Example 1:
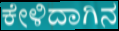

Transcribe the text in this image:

ಕೇಳಿದಾಗಿನ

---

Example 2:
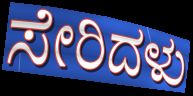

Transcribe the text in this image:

ಸೇರಿದಳು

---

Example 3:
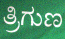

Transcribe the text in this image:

ತ್ರಿಗುಣ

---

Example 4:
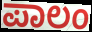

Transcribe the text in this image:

ಪಾಲಂ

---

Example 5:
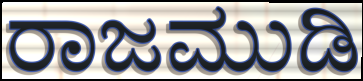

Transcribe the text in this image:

ರಾಜಮುಡಿ